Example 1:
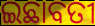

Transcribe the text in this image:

ଇଛାବତୀ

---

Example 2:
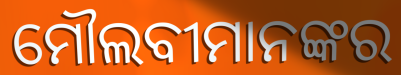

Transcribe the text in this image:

ମୌଲବୀମାନଙ୍କର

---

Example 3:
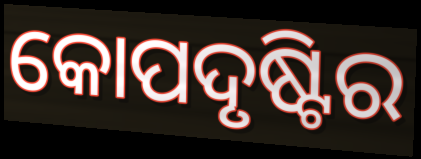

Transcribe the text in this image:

କୋପଦୃଷ୍ଟିର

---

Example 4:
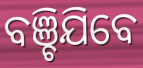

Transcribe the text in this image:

ବଞ୍ଚିଯିବେ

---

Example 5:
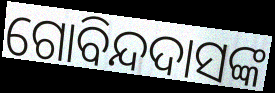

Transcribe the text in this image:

ଗୋବିନ୍ଦଦାସଙ୍କ